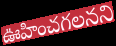
ఊహించగలనని